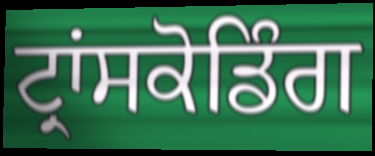
ਟ੍ਰਾਂਸਕੋਡਿੰਗ